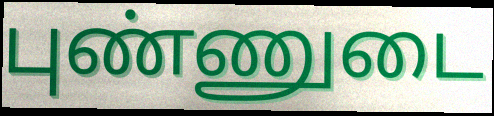
புண்ணுடை